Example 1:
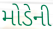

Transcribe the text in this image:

મોડેની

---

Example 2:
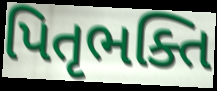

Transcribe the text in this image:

પિતૃભક્તિ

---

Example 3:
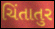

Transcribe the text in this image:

ચિંતાતુર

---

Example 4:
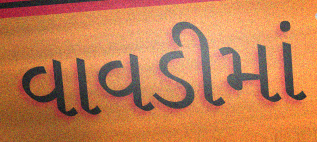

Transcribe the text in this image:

વાવડીમાં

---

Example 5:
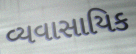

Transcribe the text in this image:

વ્યવાસાયિક